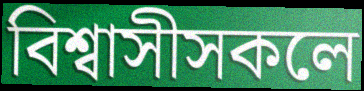
বিশ্বাসীসকলে